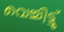
വെച്ചിട്ടു്